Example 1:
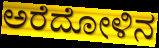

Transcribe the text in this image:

ಅರೆದೋಳಿನ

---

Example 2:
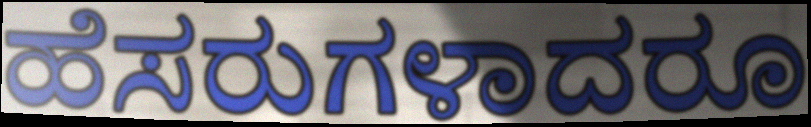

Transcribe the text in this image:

ಹೆಸರುಗಳಾದರೂ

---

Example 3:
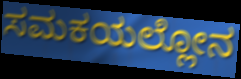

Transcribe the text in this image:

ಸಮಕಯಲ್ಲೋನ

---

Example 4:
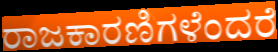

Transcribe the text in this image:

ರಾಜಕಾರಣಿಗಳೆಂದರೆ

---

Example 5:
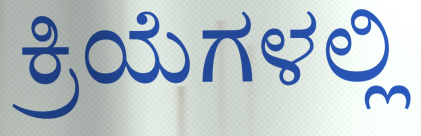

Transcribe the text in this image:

ಕ್ರಿಯೆಗಳಲ್ಲಿ